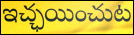
ఇచ్ఛయించుట